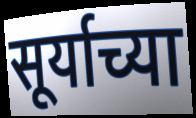
सूर्याच्या